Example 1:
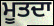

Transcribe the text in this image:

ਮੂਤਦਾ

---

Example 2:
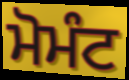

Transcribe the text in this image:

ਮੋਮੰਟ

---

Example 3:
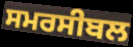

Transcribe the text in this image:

ਸਮਰਸੀਬਲ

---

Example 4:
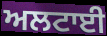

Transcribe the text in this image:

ਅਲਟਾਈ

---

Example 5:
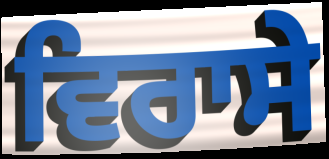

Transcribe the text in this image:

ਵਿਰਾਸੇ